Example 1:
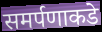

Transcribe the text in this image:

समर्पणाकडे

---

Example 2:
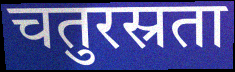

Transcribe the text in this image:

चतुरस्रता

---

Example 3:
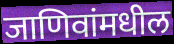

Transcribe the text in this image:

जाणिवांमधील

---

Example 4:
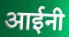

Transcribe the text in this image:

आईनी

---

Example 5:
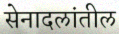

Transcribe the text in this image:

सेनादलांतील